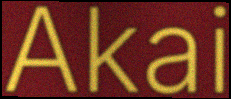
Akai